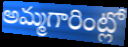
అమ్మగారింట్లో